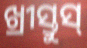
ଖ୍ରୀସ୍ତୁସ୍